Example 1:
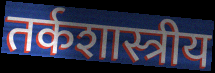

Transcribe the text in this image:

तर्कशास्त्रीय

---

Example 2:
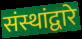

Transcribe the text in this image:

संस्थांद्वारे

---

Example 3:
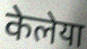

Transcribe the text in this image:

केलेया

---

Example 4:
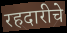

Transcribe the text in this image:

रहदारीचे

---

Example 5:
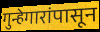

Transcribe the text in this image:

गुन्हेगारांपासून